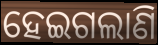
ହେଇଗଲାଣି